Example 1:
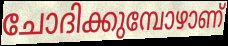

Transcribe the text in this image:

ചോദിക്കുമ്പോഴാണ്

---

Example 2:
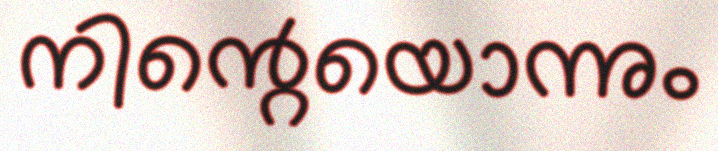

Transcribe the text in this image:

നിന്റെയൊന്നും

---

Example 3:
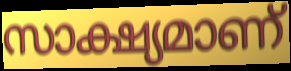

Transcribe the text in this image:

സാക്ഷ്യമാണ്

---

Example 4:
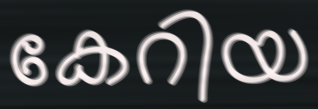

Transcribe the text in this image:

കേറിയ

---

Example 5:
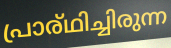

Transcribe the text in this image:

പ്രാര്ഥിച്ചിരുന്ന